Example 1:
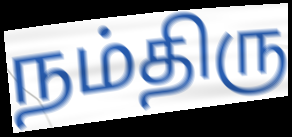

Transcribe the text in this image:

நம்திரு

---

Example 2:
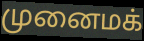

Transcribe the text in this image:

முனைமக்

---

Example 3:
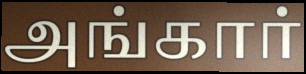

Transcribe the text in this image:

அங்கார்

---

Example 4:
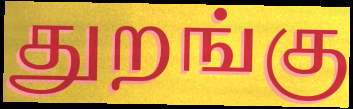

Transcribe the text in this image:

துறங்கு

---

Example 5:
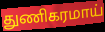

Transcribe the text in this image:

துணிகரமாய்